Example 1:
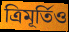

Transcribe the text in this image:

ত্ৰিমূৰ্তিও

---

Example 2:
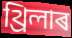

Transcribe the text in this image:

থ্ৰিলাৰ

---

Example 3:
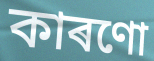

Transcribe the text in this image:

কাৰণো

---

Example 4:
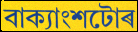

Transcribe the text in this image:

বাক্যাংশটোৰ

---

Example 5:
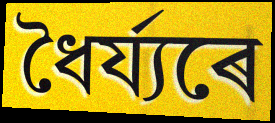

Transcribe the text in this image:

ধৈৰ্য্যৰে